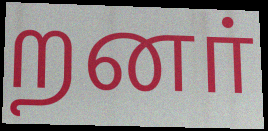
றனர்